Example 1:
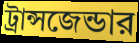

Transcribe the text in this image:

ট্রান্সজেন্ডার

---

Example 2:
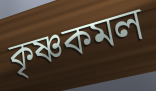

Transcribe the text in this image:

কৃষ্ণকমল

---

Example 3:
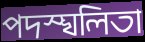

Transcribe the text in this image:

পদস্খলিতা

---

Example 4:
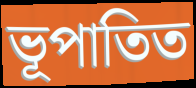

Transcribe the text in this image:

ভূপাতিত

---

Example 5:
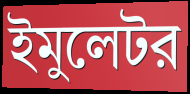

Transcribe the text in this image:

ইমুলেটর